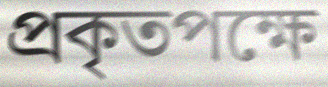
প্ৰকৃতপক্ষে